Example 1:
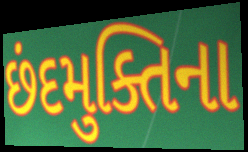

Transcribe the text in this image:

છંદમુક્તિના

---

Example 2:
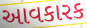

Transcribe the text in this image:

આવકારક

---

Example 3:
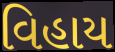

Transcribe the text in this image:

વિહાય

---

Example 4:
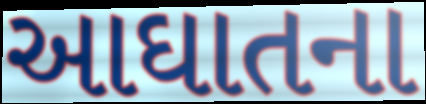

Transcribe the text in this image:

આઘાતના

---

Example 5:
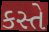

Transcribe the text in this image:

કસ્તે